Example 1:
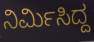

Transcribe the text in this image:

ನಿರ್ಮಿಸಿದ್ದ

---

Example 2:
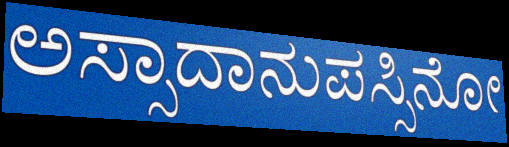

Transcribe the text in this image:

ಅಸ್ಸಾದಾನುಪಸ್ಸಿನೋ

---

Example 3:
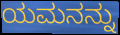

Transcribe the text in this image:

ಯಮನನ್ನು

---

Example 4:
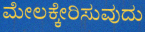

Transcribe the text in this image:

ಮೇಲಕ್ಕೇರಿಸುವುದು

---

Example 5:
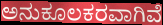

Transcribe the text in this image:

ಅನುಕೂಲಕರವಾಗಿವೆ